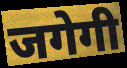
जगेगी